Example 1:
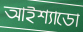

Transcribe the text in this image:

আইশ্যাডো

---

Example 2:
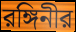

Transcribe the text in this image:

রঙ্গিনীর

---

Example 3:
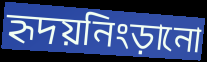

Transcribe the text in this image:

হৃদয়নিংড়ানো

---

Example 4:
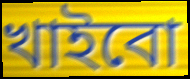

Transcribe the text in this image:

খাইবো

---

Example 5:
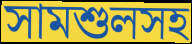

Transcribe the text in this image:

সামশুলসহ